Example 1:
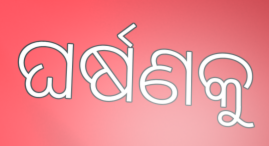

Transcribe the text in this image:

ଘର୍ଷଣକୁ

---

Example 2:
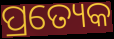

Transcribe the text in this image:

ପ୍ରତ୍ୟେକ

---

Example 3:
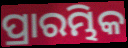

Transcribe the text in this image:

ପ୍ରାରମ୍ଭିକ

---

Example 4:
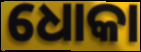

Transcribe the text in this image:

ଧୋକା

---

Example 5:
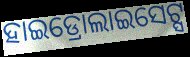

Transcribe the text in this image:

ହାଇଡ୍ରୋଲାଇସେଟ୍ସ